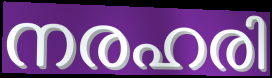
നരഹരി